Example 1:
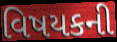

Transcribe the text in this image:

વિષયકની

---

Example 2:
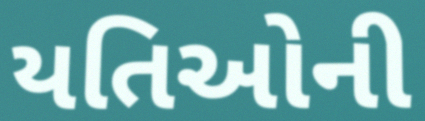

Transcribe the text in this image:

યતિઓની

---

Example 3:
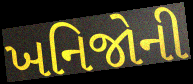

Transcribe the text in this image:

ખનિજોની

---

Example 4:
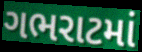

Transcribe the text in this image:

ગભરાટમાં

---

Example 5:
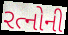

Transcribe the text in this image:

રત્નોની